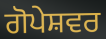
ਗੋਪੇਸ਼ਵਰ